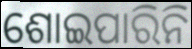
ଶୋଇପାରିନି